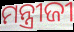
ମନ୍ତ୍ରୀଜୀ